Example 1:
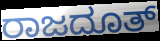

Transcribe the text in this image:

ರಾಜದೂತ್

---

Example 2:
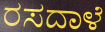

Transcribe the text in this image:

ರಸದಾಳೆ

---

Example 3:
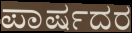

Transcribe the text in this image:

ಪಾರ್ಷದರ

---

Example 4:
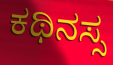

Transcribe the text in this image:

ಕಥಿನಸ್ಸ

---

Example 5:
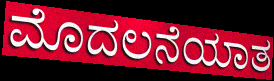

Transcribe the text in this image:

ಮೊದಲನೆಯಾತ